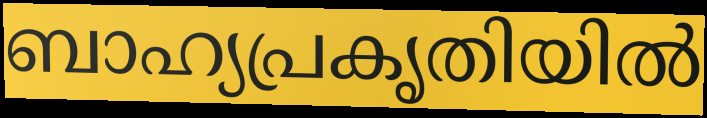
ബാഹ്യപ്രകൃതിയിൽ